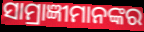
ସାମ୍ରାଜ୍ଞୀମାନଙ୍କର